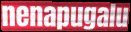
nenapugalu